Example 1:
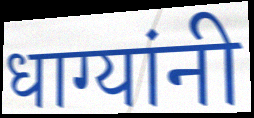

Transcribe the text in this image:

धाग्यांनी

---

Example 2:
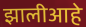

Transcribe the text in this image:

झालीआहे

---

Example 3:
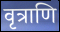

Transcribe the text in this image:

वृत्राणि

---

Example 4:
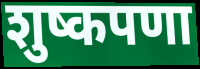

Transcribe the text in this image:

शुष्कपणा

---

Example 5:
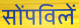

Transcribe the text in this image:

सोंपविलें